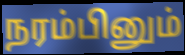
நரம்பினும்